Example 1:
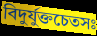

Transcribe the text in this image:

বিদুর্যুক্তচেতসঃ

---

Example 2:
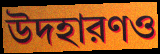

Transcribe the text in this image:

উদহারণও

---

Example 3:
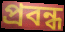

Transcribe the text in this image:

প্রবন্ধ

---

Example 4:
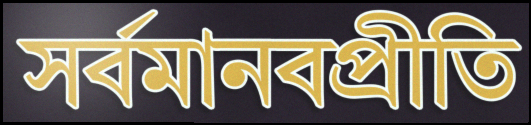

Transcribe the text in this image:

সর্বমানবপ্রীতি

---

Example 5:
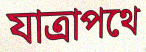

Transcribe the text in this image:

যাত্রাপথে